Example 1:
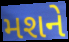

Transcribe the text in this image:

મશને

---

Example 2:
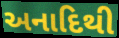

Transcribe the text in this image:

અનાદિથી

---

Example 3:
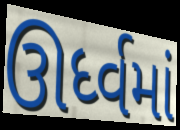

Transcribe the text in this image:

ઊર્ધ્વમાં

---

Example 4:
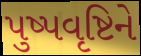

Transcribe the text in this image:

પુષ્પવૃષ્ટિને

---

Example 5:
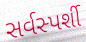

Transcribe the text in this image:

સર્વસ્પર્શી